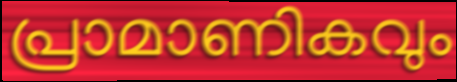
പ്രാമാണികവും